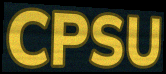
CPSU